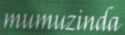
mumuzinda